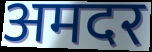
अमदर